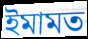
ইমামত